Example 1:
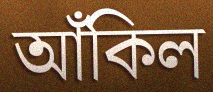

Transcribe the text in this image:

আঁকিল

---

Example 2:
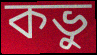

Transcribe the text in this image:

কভু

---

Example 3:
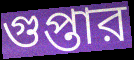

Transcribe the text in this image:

গুপ্তার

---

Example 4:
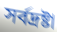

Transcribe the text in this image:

সর্বদ্রষ্টা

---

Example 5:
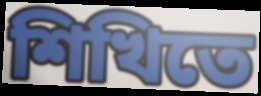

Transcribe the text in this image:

শিখিতে